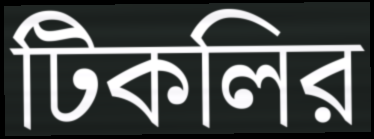
টিকলির